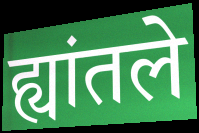
ह्यांतले